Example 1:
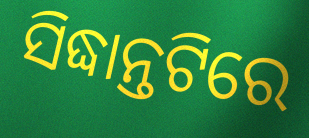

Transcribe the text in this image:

ସିଦ୍ଧାନ୍ତଟିରେ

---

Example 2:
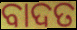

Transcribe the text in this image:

ବାଦତ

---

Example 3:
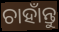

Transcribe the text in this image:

ଚାହାଁନ୍ତୁ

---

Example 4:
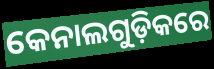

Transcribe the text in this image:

କେନାଲଗୁଡ଼ିକରେ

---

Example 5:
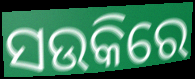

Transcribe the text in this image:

ସଉକିରେ